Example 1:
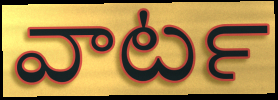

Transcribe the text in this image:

వాటర్‍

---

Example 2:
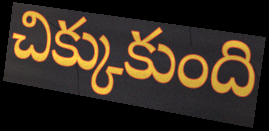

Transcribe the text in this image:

చిక్కుకుంది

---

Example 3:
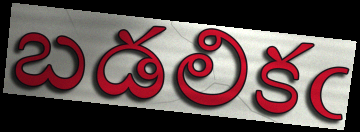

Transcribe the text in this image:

బడలికఁ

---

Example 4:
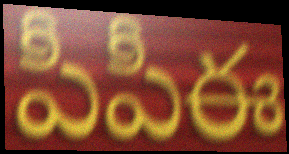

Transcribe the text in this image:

పీపీఈ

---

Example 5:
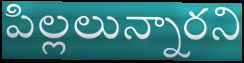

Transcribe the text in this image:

పిల్లలున్నారని